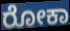
ರೋಕಾ